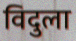
विदुला